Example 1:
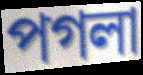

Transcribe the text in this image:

পগলা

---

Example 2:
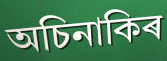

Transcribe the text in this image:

অচিনাকিৰ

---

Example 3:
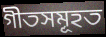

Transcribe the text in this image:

গীতসমূহত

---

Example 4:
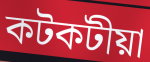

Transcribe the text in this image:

কটকটীয়া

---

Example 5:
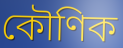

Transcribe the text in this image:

কৌণিক